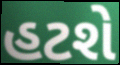
હટશે